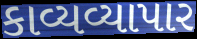
કાવ્યવ્યાપાર